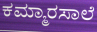
ಕಮ್ಮಾರಸಾಲೆ